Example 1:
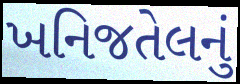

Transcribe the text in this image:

ખનિજતેલનું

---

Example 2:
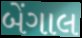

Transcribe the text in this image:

બેંગાલ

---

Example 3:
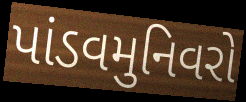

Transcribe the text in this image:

પાંડવમુનિવરો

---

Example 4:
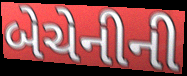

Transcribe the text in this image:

બેચેનીની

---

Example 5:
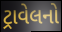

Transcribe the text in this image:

ટ્રાવેલનો